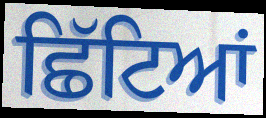
ਛਿੱਟਿਆਂ